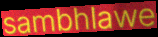
sambhlawe